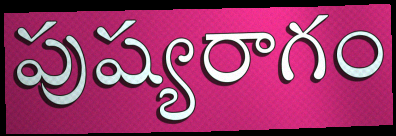
పుష్యరాగం